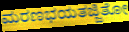
ಮರಣಭಯತಜ್ಜಿತೋ